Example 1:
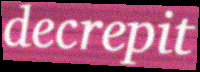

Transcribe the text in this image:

decrepit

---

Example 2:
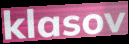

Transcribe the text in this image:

klasov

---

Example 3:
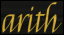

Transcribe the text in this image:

arith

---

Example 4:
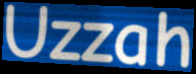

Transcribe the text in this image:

Uzzah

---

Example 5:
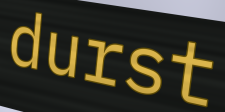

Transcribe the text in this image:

durst